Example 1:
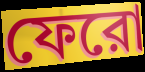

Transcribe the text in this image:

ফেরো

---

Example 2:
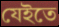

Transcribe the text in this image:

যেইতে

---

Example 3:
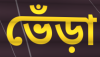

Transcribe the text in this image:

ভেঁড়া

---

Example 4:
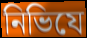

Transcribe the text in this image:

নিভিযে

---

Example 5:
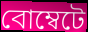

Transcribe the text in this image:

বোম্বেটে